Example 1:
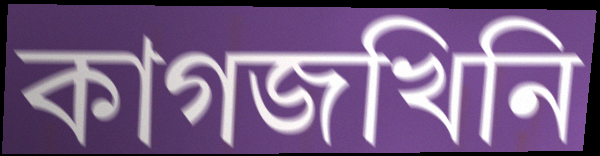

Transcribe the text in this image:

কাগজখিনি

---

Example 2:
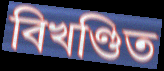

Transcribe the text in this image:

বিখণ্ডিত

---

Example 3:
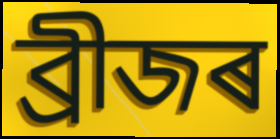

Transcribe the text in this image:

ব্ৰীজৰ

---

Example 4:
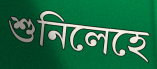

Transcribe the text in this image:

শুনিলেহে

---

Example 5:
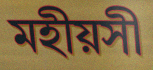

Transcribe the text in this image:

মহীয়সী